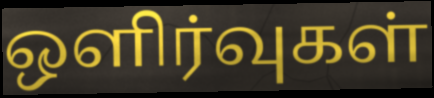
ஒளிர்வுகள்